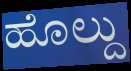
ಹೊಲ್ದು